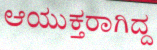
ಆಯುಕ್ತರಾಗಿದ್ದ